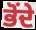
ਭੋਂਦੇ